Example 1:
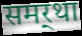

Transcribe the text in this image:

समर्था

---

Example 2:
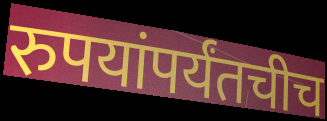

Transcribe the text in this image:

रुपयांपर्यंतचीच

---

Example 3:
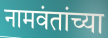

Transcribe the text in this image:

नामवंतांच्या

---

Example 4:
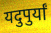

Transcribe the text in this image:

यदुपुर्यां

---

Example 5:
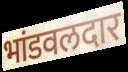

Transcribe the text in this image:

भांडवलदार